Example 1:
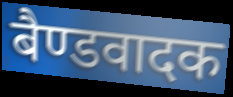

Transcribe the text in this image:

बैण्डवादक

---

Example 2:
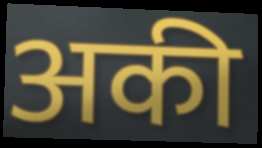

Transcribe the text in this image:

अकी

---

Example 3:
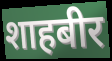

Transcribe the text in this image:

शाहबीर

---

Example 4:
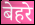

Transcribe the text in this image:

बेहरे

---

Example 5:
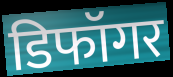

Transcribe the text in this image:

डिफॉगर